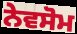
ਨੇਵਸੋਮ